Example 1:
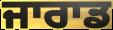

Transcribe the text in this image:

ਜਾਰਾਡ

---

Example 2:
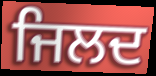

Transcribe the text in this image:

ਜਿਲਦ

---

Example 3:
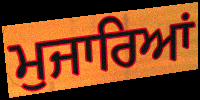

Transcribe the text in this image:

ਮੁਜਾਰਿਆਂ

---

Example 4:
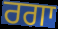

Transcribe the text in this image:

ਰਗਾ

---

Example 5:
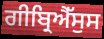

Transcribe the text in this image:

ਗੀਬ੍ਰਿਐੱਸੁਸ